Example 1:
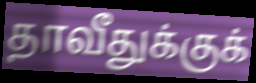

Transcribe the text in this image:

தாவீதுக்குக்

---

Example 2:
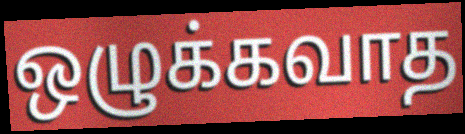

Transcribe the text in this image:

ஒழுக்கவாத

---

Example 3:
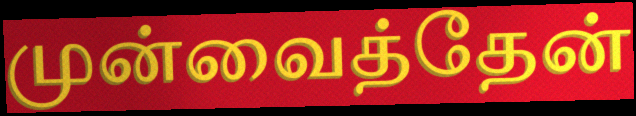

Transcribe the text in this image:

முன்வைத்தேன்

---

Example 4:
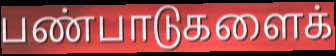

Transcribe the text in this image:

பண்பாடுகளைக்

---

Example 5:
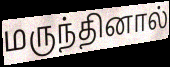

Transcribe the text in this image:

மருந்தினால்